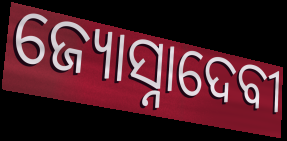
ଜ୍ୟୋସ୍ନାଦେବୀ